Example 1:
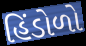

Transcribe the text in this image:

હિંડોળો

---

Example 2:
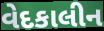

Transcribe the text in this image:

વેદકાલીન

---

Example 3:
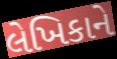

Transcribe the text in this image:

લેખિકાને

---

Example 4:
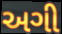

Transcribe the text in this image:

અગી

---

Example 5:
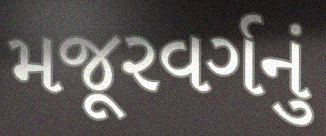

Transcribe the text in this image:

મજૂરવર્ગનું